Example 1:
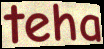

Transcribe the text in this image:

teha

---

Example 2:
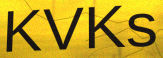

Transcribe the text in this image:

KVKs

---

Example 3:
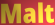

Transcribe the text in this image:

Malt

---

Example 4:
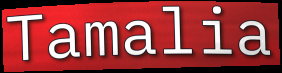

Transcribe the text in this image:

Tamalia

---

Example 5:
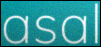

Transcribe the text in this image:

asal